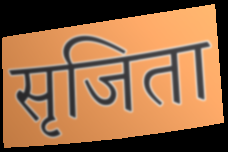
सृजिता